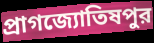
প্রাগজ্যোতিষপুর